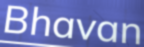
Bhavan